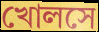
খোলসে